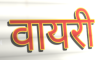
वायरी